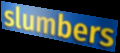
slumbers